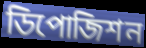
ডিপোজিশন